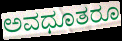
ಅವಧೂತರೂ